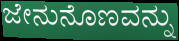
ಜೇನುನೊಣವನ್ನು